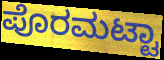
ಪೊರಮಟ್ಟಾ